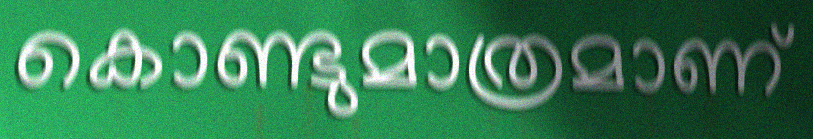
കൊണ്ടുമാത്രമാണ്